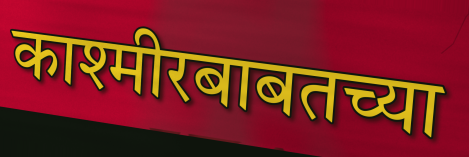
काश्मीरबाबतच्या